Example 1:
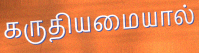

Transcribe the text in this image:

கருதியமையால்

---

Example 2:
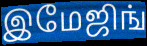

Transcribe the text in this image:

இமேஜிங்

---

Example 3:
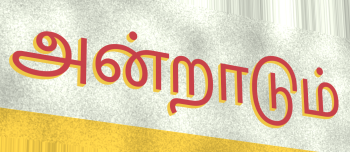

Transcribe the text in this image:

அன்றாடும்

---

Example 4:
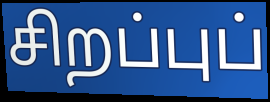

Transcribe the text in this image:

சிறப்புப்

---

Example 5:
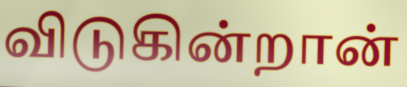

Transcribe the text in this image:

விடுகின்றான்